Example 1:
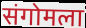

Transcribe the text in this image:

संगोमला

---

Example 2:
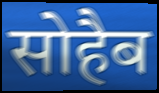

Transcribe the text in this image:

सोहैब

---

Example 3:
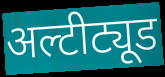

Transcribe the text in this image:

अल्टीट्यूड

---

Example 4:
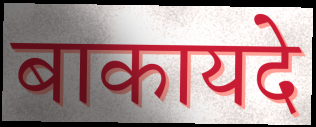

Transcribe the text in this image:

बाकायदे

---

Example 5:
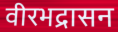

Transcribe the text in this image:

वीरभद्रासन